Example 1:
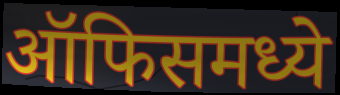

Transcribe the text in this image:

ऑफिसमध्ये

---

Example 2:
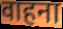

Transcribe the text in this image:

वाहना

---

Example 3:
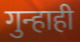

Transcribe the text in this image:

गुन्हाही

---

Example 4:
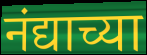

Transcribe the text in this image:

नंद्याच्या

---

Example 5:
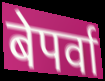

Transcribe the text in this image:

बेपर्वा